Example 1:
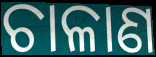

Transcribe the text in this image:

ଚାଳାଣ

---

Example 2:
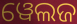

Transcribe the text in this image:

ୱେଲଜ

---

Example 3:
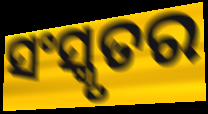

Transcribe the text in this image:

ସଂସ୍କୃତର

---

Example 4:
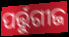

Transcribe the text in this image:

ପର୍ତ୍ତୁଗୀଜ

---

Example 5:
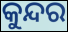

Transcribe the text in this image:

କୁନ୍ଦର